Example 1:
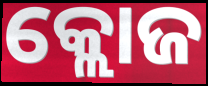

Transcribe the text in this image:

କ୍ଲୋଜ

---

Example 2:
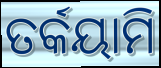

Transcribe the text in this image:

ତର୍କୟାମି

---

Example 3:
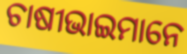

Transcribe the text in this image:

ଚାଷୀଭାଇମାନେ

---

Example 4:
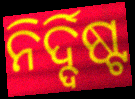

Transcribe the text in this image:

ନିର୍ଦ୍ଦିଷ୍ଟ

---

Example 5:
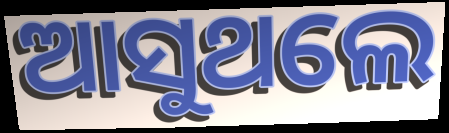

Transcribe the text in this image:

ଆସୁଥଲେ